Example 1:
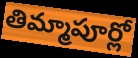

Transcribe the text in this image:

తిమ్మాపూర్లో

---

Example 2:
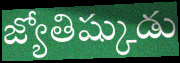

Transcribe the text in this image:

జ్యోతిష్కుడు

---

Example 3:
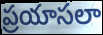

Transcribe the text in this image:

ప్రయాసలా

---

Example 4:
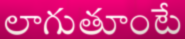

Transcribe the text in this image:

లాగుతూంటే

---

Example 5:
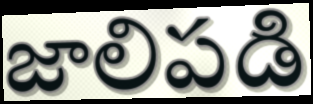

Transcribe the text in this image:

జాలిపడి